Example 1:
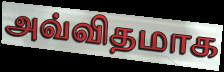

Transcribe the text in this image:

அவ்விதமாக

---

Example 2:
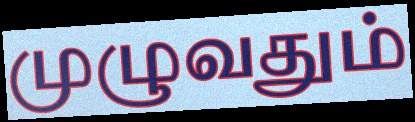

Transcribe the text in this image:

முழுவதும்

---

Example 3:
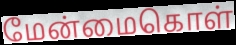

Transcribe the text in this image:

மேன்மைகொள்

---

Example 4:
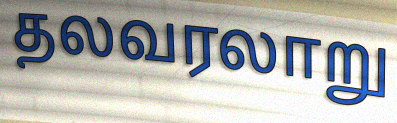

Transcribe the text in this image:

தலவரலாறு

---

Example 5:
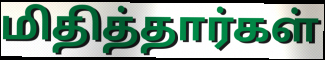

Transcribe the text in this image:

மிதித்தார்கள்